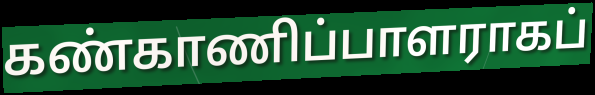
கண்காணிப்பாளராகப்